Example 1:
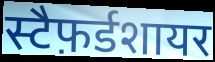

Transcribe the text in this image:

स्टैफ़र्डशायर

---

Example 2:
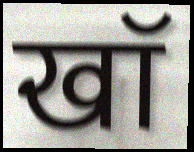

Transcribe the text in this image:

खॉ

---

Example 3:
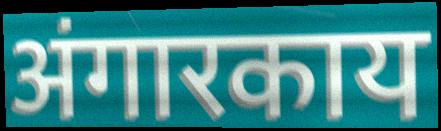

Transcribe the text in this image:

अंगारकाय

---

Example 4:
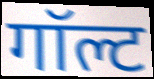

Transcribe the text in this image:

गॉल्ट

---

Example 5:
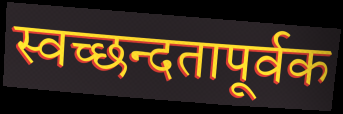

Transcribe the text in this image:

स्वच्छन्दतापूर्वक